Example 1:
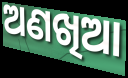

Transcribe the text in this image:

ଅଣଖିଆ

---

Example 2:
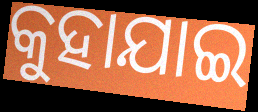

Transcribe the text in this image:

କୁହାଯାଇ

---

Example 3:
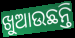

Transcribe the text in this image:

ଖୁଆଉଛନ୍ତି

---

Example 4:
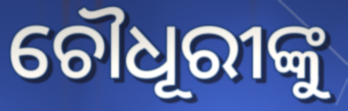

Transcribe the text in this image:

ଚୌଧୂରୀଙ୍କୁ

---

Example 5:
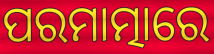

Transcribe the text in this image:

ପରମାତ୍ମାରେ